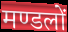
मण्डलों